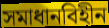
সমাধানবিহীন